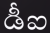
డీఐ